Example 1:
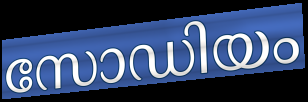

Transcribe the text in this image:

സോഡിയം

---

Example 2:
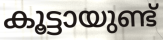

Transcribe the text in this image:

കൂട്ടായുണ്ട്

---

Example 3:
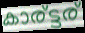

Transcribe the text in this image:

കാര്ട്ടര്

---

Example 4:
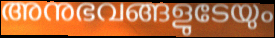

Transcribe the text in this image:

അനുഭവങ്ങളുടേയും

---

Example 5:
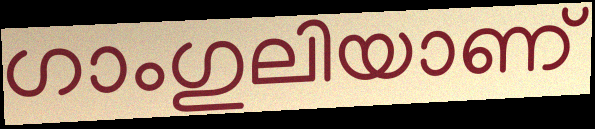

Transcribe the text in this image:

ഗാംഗുലിയാണ്